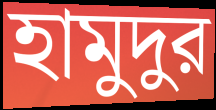
হামুদুর